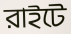
রাইটে